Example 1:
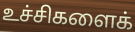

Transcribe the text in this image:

உச்சிகளைக்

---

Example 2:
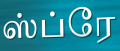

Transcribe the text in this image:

ஸ்ப்ரே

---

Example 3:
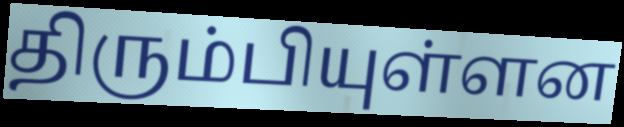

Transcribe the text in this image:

திரும்பியுள்ளன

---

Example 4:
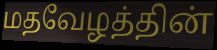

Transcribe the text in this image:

மதவேழத்தின்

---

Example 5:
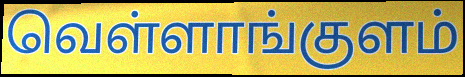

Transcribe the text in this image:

வெள்ளாங்குளம்